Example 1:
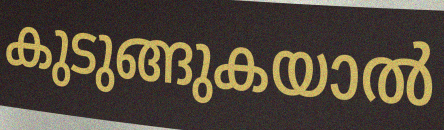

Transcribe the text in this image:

കുടുങ്ങുകയാൽ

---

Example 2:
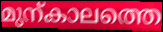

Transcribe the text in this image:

മുന്കാലത്തെ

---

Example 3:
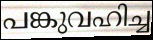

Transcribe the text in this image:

പങ്കുവഹിച്ച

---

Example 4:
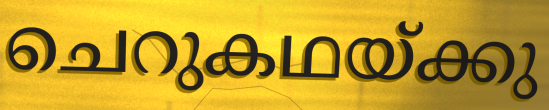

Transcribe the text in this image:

ചെറുകഥയ്ക്കു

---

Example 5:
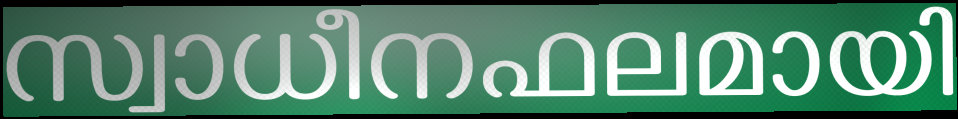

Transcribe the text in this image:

സ്വാധീനഫലമായി